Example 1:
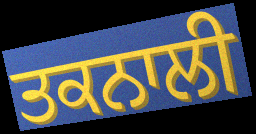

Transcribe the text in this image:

ਤਕਨਾਲੀ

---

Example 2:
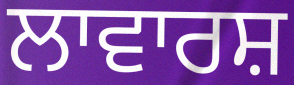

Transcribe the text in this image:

ਲਾਵਾਰਸ਼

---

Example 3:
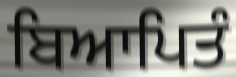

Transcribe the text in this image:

ਬਿਆਪਿਤੰ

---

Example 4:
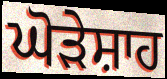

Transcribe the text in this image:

ਘੋੜੇਸ਼ਾਹ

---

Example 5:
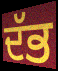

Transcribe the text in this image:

ਦੱਭ